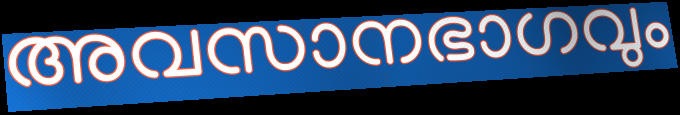
അവസാനഭാഗവും